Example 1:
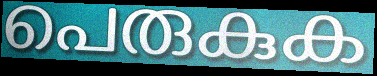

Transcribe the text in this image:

പെരുകുക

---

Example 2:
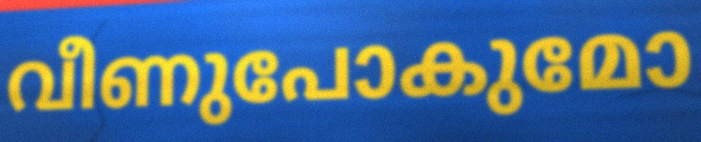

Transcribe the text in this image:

വീണുപോകുമോ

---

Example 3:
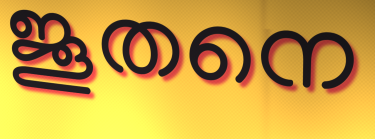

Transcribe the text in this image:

ജൂതനെ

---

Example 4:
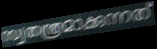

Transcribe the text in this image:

സ്വതന്ത്രമാക്കുന്നത്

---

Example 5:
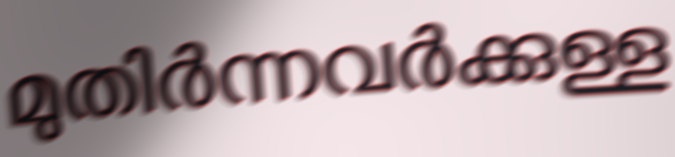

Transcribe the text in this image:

മുതിർന്നവർക്കുള്ള